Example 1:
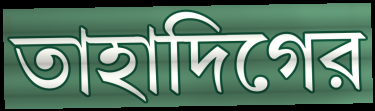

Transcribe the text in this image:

তাহাদিগের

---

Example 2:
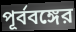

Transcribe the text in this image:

পূর্ববঙ্গের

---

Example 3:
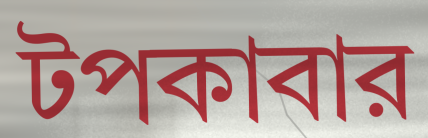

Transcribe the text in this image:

টপকাবার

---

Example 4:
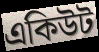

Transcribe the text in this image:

একিউট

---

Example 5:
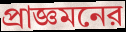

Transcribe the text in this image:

প্রাজ্ঞমনের